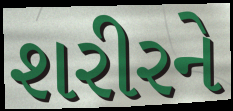
શરીરને